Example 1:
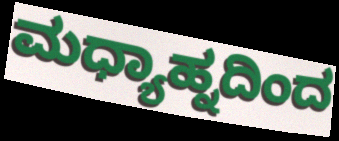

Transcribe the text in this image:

ಮಧ್ಯಾಹ್ನದಿಂದ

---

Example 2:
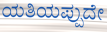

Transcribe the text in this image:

ಯತಿಯಪ್ಪುದೇ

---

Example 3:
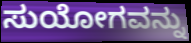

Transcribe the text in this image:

ಸುಯೋಗವನ್ನು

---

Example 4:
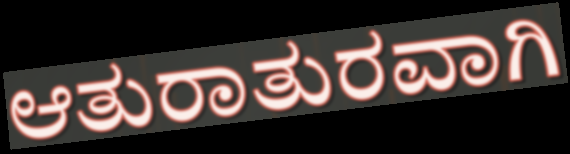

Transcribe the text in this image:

ಆತುರಾತುರವಾಗಿ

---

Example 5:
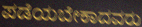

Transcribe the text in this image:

ಪಡೆಯಬೇಕಾದವರು